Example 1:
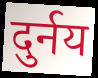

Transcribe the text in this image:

दुर्नय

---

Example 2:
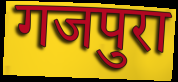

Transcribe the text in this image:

गजपुरा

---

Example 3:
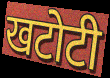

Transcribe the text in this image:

खटोटी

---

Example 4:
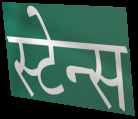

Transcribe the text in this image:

स्टेन्स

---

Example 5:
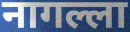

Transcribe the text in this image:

नागल्ला